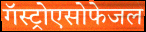
गॅस्ट्रोएसोफेजल